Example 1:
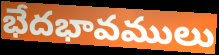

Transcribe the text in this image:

భేదభావములు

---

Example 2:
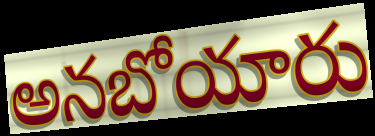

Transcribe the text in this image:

అనబోయారు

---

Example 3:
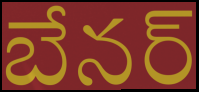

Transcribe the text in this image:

బేనర్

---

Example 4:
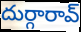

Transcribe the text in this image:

దుర్గారావ్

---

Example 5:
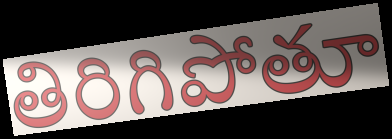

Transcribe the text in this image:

తిరిగిపోతూ